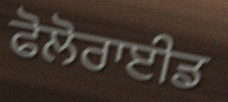
ਫੋਲੋਰਾਈਡ